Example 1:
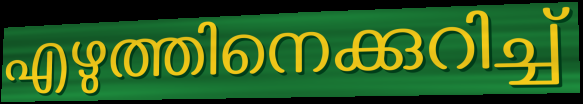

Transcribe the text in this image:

എഴുത്തിനെക്കുറിച്ച്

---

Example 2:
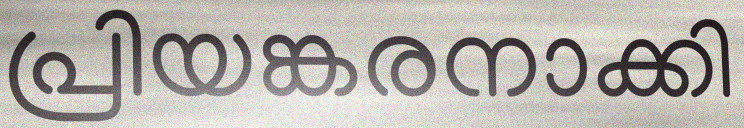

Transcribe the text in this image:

പ്രിയങ്കരനാക്കി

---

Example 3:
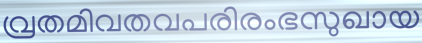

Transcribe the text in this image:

വ്രതമിവതവപരിരംഭസുഖായ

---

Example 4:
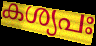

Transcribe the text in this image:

കശ്യപഃ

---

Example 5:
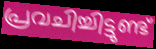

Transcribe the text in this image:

പ്രവചിച്ചിട്ടുണ്ട്